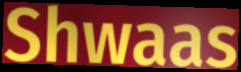
Shwaas